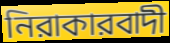
নিরাকারবাদী